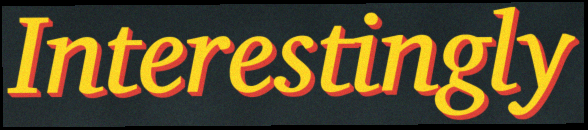
Interestingly